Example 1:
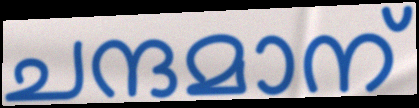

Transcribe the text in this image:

ചന്ദമാന്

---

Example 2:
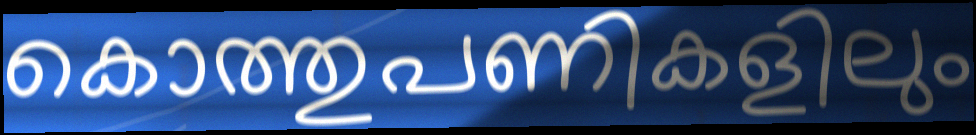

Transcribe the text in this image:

കൊത്തുപണികളിലും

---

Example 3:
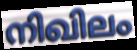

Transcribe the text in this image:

നിഖിലം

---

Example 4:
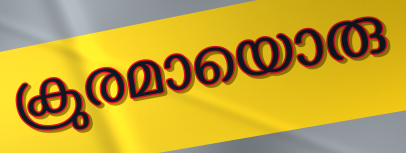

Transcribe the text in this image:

ക്രുരമായൊരു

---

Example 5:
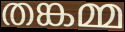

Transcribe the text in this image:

തങ്കമ്മ